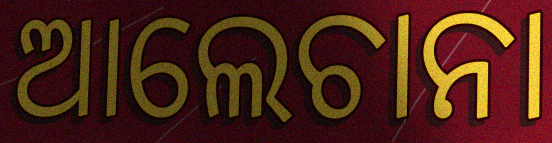
ଆଲେଚାନା